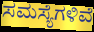
ಸಮಸ್ಯೆಗಳಿವೆ